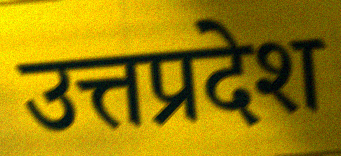
उत्तप्रदेश